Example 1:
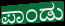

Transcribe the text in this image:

ಪಾಂಡು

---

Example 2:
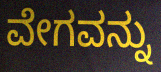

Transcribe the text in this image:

ವೇಗವನ್ನು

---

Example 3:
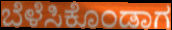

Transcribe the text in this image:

ಬೆಳೆಸಿಕೊಂಡಾಗ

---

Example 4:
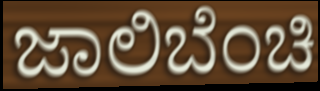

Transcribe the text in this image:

ಜಾಲಿಬೆಂಚಿ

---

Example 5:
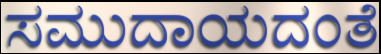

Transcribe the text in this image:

ಸಮುದಾಯದಂತೆ